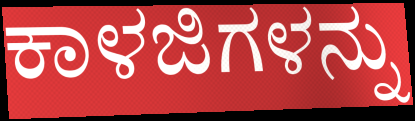
ಕಾಳಜಿಗಳನ್ನು